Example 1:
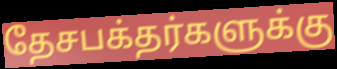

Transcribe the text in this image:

தேசபக்தர்களுக்கு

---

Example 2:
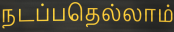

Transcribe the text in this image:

நடப்பதெல்லாம்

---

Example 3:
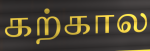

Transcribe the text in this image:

கற்கால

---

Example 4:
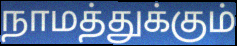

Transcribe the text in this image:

நாமத்துக்கும்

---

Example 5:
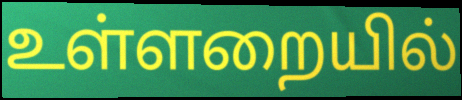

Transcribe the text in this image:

உள்ளறையில்